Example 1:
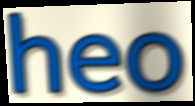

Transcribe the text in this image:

heo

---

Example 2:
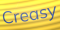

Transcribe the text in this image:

Creasy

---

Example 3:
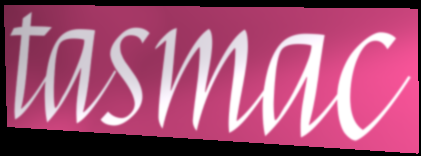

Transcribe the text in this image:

tasmac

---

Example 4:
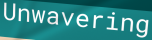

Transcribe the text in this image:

Unwavering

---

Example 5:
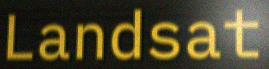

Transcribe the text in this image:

Landsat